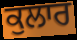
ਕੁਲਾਰ